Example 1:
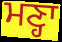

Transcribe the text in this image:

ਮਣ੍ਹਾ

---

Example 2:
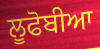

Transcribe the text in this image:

ਲੂਫੋਬੀਆ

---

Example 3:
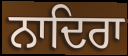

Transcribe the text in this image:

ਨਾਦਿਰਾ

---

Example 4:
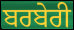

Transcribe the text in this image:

ਬਰਬੇਰੀ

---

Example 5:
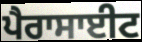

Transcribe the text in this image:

ਪੈਰਾਸਾਈਟ